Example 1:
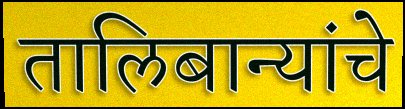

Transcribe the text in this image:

तालिबान्यांचे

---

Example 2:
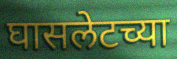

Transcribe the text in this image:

घासलेटच्या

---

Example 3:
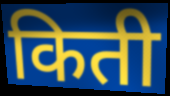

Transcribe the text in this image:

किती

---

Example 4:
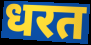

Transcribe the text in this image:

धरत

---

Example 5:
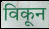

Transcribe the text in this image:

विकून